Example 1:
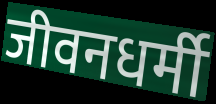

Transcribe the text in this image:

जीवनधर्मी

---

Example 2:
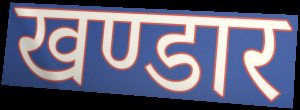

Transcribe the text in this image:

खण्डार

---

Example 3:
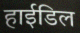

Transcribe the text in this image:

हाईडिल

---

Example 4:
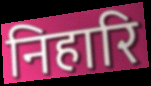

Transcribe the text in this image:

निहारि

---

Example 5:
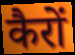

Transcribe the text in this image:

कैरों